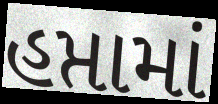
હપ્તામાં